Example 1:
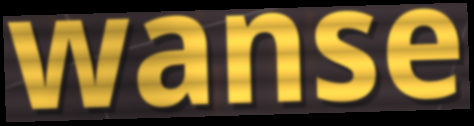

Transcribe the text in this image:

wanse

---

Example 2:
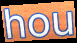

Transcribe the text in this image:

hou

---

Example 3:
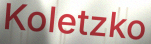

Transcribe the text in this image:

Koletzko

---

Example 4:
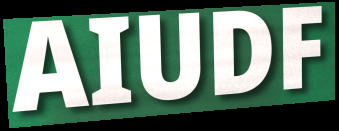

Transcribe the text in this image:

AIUDF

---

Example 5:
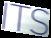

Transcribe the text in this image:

ITS